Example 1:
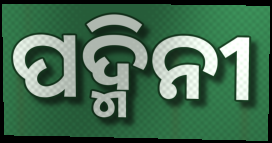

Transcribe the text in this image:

ପଦ୍ମିନୀ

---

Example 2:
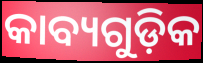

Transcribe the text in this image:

କାବ୍ୟଗୁଡ଼ିକ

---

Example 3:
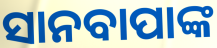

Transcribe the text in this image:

ସାନବାପାଙ୍କ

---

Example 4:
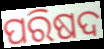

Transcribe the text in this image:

ପରିଷଦ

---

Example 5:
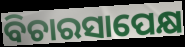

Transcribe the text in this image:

ବିଚାରସାପେକ୍ଷ